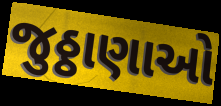
જુઠ્ઠાણાઓ